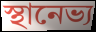
স্থানেভ্য